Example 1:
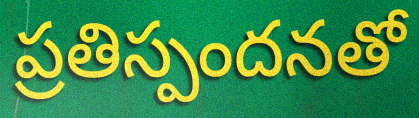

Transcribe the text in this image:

ప్రతిస్పందనతో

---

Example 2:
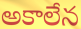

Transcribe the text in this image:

అకాలేన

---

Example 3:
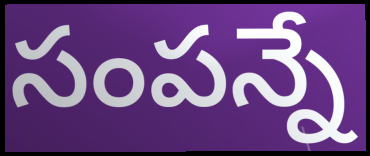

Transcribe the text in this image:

సంపన్నే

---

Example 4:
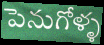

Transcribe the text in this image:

పెనుగోళ్ళ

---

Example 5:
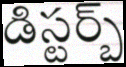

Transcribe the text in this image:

డిస్టర్బ్